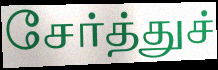
சேர்த்துச்